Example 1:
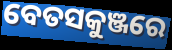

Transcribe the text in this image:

ବେତସକୁଞ୍ଜରେ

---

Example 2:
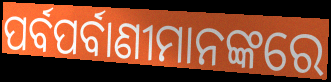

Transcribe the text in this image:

ପର୍ବପର୍ବାଣୀମାନଙ୍କରେ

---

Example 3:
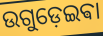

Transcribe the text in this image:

ଉଗୁଡ଼େଇଵା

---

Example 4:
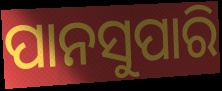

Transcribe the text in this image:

ପାନସୁପାରି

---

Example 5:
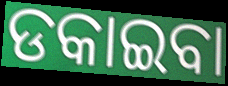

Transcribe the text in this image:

ଡକାଇବା